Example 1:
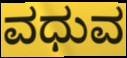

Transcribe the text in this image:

ವಧುವ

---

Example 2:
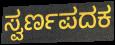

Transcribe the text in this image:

ಸ್ವರ್ಣಪದಕ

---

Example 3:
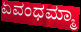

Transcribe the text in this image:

ಏವಂಧಮ್ಮಾ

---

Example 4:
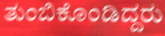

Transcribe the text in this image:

ತುಂಬಿಕೊಂಡಿದ್ದರು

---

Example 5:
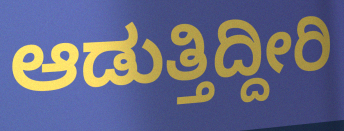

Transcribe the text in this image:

ಆಡುತ್ತಿದ್ದೀರಿ